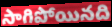
సాగిపోయినది